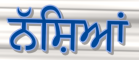
ਨੱਸ਼ਿਆਂ